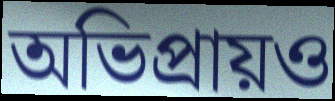
অভিপ্রায়ও